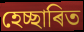
হেচ্ছাৰিত